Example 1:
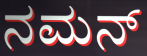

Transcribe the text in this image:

ನಮನ್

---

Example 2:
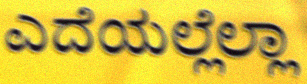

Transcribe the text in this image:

ಎದೆಯಲ್ಲೆಲ್ಲಾ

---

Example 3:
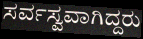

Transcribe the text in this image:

ಸರ್ವಸ್ವವಾಗಿದ್ದರು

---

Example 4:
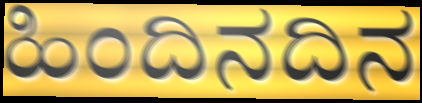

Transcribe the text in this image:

ಹಿಂದಿನದಿನ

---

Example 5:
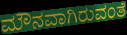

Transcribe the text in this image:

ಮೌನವಾಗಿರುವಂತೆ